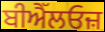
ਬੀਐੱਲਓਜ਼